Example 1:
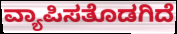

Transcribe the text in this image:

ವ್ಯಾಪಿಸತೊಡಗಿದೆ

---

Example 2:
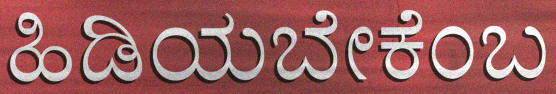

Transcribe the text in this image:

ಹಿಡಿಯಬೇಕೆಂಬ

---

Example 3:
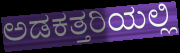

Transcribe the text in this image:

ಅಡಕತ್ತರಿಯಲ್ಲಿ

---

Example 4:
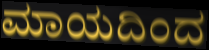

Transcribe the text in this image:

ಮಾಯದಿಂದ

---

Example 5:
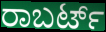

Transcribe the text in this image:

ರಾಬರ್ಟ್